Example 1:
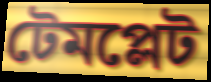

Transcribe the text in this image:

টেমপ্লেট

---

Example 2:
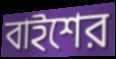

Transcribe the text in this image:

বাইশের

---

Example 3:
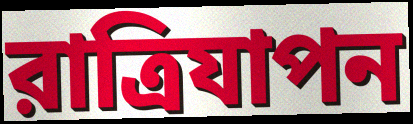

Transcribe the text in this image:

রাত্রিযাপন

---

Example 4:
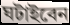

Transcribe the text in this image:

ঘটাইবেন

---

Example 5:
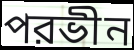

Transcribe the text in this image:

পরভীন